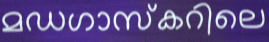
മഡഗാസ്കറിലെ